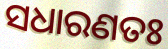
ସଧାରଣତଃ